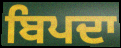
ਬਿਪਦਾ